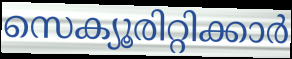
സെക്യൂരിറ്റിക്കാർ